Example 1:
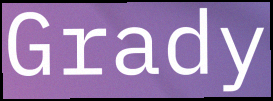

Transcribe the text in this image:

Grady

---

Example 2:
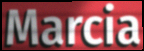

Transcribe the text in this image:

Marcia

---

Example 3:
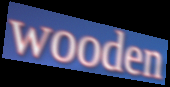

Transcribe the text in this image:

wooden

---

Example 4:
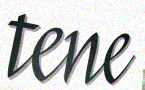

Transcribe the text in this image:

tene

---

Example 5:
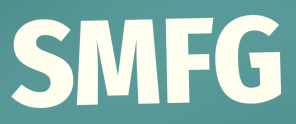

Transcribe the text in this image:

SMFG